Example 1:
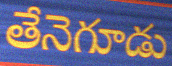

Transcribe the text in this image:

తేనెగూడు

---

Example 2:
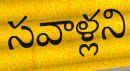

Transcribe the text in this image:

సవాళ్లని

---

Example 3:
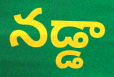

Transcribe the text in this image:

నడ్డా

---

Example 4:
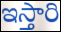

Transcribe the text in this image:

ఇస్తారి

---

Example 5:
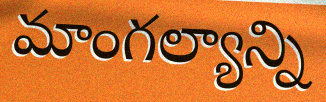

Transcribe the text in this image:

మాంగల్యాన్ని